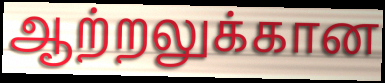
ஆற்றலுக்கான